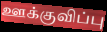
ஊக்குவிப்பு